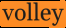
volley